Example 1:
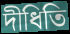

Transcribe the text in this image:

দীধিতি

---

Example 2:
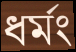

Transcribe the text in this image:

ধর্মং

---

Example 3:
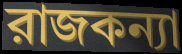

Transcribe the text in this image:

রাজকন্যা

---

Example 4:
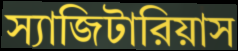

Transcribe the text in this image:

স্যাজিটারিয়াস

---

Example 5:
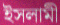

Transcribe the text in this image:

ইসলামী